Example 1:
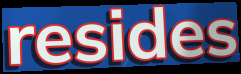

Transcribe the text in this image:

resides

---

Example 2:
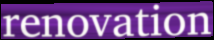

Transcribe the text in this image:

renovation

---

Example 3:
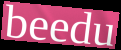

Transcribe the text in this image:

beedu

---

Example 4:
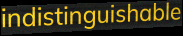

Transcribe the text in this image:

indistinguishable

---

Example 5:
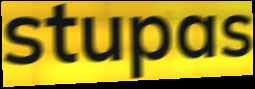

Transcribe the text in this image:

stupas